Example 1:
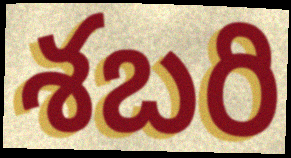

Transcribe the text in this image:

శబరి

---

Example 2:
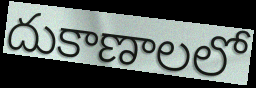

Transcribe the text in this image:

దుకాణాలలో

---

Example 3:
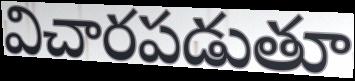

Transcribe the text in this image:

విచారపడుతూ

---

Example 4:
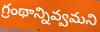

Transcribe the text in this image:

గ్రంథాన్నివ్వమని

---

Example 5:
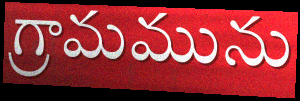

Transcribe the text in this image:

గ్రామమును